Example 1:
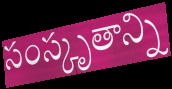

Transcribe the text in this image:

సంస్కృతాన్ని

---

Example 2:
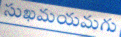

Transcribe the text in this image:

సుఖమయమగు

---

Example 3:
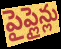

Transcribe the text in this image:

పైప్లైన్లు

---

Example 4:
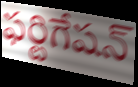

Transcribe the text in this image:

ఫర్టిగేషన్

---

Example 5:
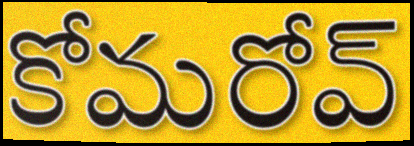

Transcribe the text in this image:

కోమరోవ్